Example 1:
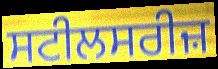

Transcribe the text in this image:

ਸਟੀਲਸਰੀਜ਼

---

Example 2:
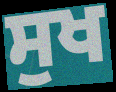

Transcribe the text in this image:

ਸੁਖ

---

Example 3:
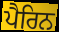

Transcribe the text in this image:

ਪੈਰਿਨ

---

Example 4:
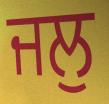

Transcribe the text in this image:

ਜਲੁ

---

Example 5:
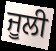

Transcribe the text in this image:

ਜੂਲੀ